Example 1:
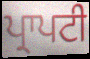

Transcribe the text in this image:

ਪ੍ਰਾਪਟੀ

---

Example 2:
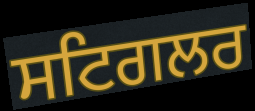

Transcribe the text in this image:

ਸਟਿਗਲਰ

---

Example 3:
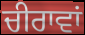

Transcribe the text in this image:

ਚੀਰਾਵਾਂ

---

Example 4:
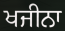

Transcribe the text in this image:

ਖਜੀਨਾ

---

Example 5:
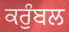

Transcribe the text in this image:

ਕਰੁੰਬਲ